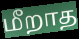
மீறாத